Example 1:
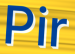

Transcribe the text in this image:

Pir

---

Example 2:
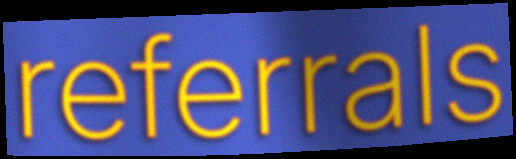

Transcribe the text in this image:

referrals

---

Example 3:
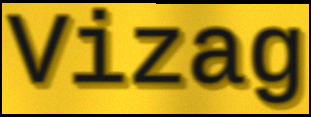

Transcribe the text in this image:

Vizag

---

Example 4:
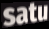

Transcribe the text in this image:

satu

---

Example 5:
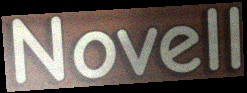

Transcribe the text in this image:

Novell